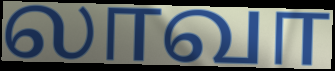
லாவா